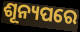
ଶୂନ୍ୟପରେ